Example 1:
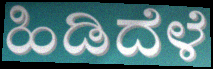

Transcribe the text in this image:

ಹಿಡಿದೆಳೆ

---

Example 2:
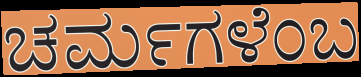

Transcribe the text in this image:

ಚರ್ಮಗಳೆಂಬ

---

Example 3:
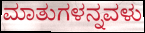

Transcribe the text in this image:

ಮಾತುಗಳನ್ನವಳು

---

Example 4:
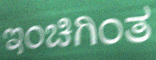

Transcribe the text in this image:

ಇಂಚಿಗಿಂತ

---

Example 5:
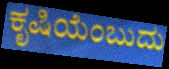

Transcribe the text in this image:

ಕೃಷಿಯೆಂಬುದು